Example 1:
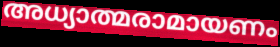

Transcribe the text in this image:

അധ്യാത്മരാമായണം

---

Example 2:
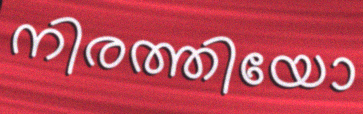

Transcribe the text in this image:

നിരത്തിയോ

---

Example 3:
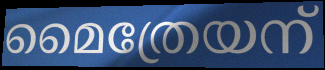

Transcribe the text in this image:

മൈത്രേയന്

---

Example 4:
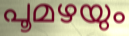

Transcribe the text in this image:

പൂമഴയും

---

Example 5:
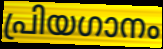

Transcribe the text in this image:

പ്രിയഗാനം